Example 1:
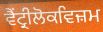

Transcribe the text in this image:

ਵੈਂਟ੍ਰੀਲੋਕਵਿਜ਼ਮ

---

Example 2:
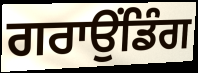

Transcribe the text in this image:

ਗਰਾਉਂਡਿੰਗ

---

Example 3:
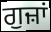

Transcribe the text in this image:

ਗੁਜ਼ਾਂ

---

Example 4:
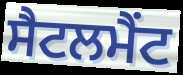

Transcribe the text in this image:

ਸੈਟਲਮੈਂਟ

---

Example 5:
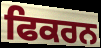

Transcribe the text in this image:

ਫਿਕਰਨ